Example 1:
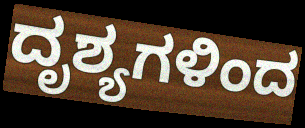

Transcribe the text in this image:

ದೃಶ್ಯಗಳಿಂದ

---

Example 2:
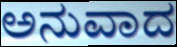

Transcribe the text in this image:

ಅನುವಾದ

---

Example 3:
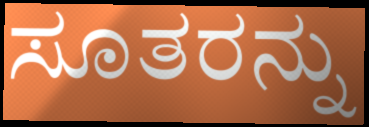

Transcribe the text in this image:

ಸೂತರನ್ನು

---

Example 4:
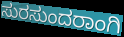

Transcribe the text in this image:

ಸುರಸುಂದರಾಂಗಿ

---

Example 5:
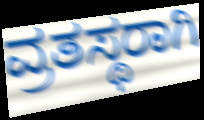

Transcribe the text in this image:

ವ್ರತಸ್ಥರಾಗಿ